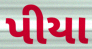
પીયા